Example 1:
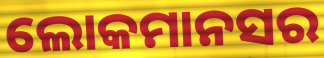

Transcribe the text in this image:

ଲୋକମାନସର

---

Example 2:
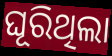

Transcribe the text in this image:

ଘୂରିଥିଲା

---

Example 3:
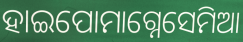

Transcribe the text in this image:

ହାଇପୋମାଗ୍ନେସେମିଆ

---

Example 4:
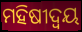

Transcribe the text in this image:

ମହିଷୀଦ୍ୱୟ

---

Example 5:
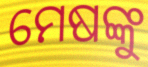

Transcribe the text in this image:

ମେଷଙ୍କୁ